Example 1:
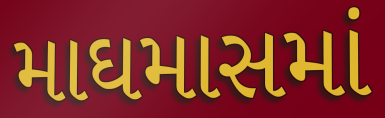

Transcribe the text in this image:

માઘમાસમાં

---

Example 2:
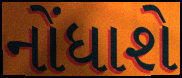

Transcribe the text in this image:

નોંધાશે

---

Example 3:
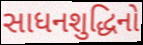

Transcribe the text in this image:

સાધનશુદ્ધિનો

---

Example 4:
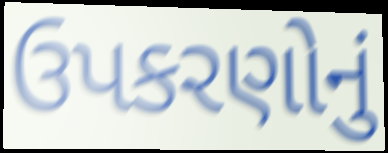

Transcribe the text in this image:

ઉપકરણોનું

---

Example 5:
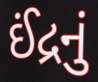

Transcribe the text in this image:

ઈંદ્રનું